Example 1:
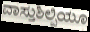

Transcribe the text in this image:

ವಾಸ್ತುಶಿಲ್ಪಿಯೂ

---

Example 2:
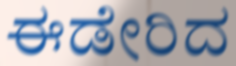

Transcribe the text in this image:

ಈಡೇರಿದ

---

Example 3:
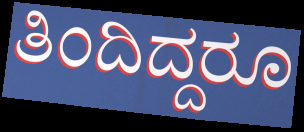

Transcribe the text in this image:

ತಿಂದಿದ್ದರೂ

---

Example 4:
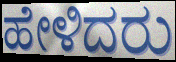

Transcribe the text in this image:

ಹೇಳಿದರು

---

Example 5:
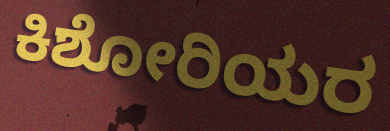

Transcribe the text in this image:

ಕಿಶೋರಿಯರ